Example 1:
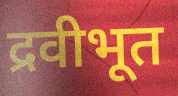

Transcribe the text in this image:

द्रवीभूत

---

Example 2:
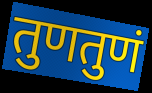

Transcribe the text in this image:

तुणतुणं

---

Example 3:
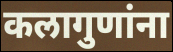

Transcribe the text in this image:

कलागुणांना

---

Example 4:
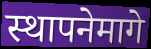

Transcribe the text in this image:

स्थापनेमागे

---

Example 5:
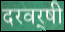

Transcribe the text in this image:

दरवर्षी